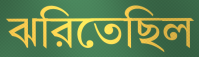
ঝরিতেছিল